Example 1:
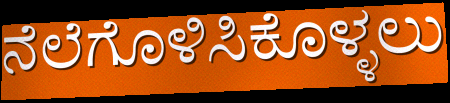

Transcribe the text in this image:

ನೆಲೆಗೊಳಿಸಿಕೊಳ್ಳಲು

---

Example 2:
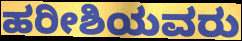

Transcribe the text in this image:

ಹರೀಶಿಯವರು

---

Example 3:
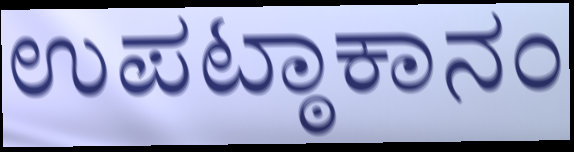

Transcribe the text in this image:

ಉಪಟ್ಠಾಕಾನಂ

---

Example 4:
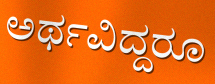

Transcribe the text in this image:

ಅರ್ಥವಿದ್ದರೂ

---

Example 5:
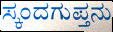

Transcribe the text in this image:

ಸ್ಕಂದಗುಪ್ತನು